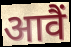
आवैं